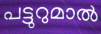
പട്ടുറുമാൽ